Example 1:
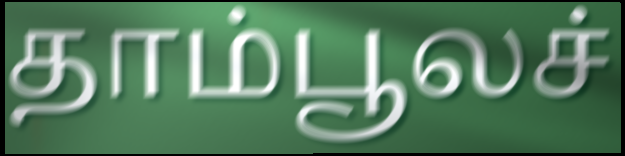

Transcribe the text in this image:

தாம்பூலச்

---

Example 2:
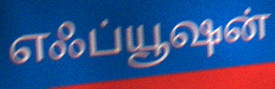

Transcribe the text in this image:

எஃப்யூஷன்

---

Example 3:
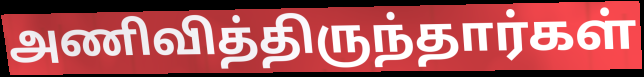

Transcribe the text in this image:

அணிவித்திருந்தார்கள்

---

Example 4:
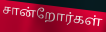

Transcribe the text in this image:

சான்றோர்கள்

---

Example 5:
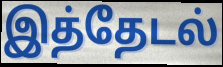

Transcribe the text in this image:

இத்தேடல்